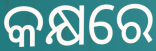
କକ୍ଷରେ